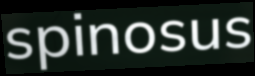
spinosus